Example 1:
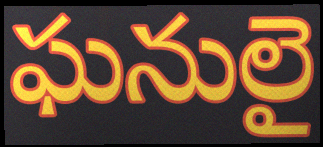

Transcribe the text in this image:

ఘనులై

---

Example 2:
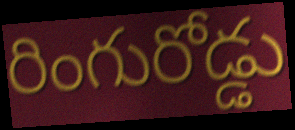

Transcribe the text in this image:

రింగురోడ్డు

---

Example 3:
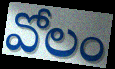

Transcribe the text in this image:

వోలం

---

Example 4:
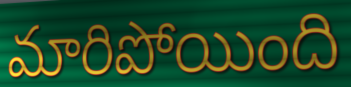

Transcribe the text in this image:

మారిపోయింది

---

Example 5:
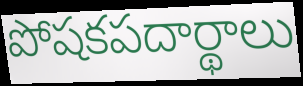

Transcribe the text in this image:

పోషకపదార్థాలు